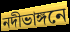
নদীভাঙ্গনে